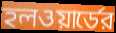
হলওয়ার্ডের